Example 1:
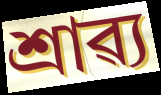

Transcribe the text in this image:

শ্ৰাৱ্য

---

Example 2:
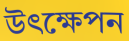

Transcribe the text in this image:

উৎক্ষেপন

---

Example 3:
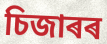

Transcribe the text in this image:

চিজাৰৰ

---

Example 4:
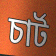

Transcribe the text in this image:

চাৰ্ট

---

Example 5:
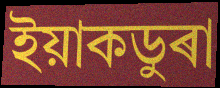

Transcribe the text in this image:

ইয়াকডুৰা